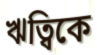
ঋত্বিকে